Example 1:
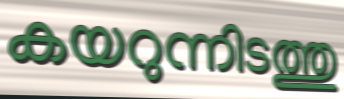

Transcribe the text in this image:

കയറുന്നിടത്തു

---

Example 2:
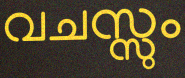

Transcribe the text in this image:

വചസ്സും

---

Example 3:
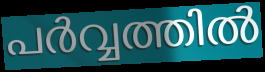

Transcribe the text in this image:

പർവ്വത്തിൽ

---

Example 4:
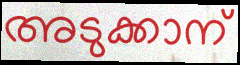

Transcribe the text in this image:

അടുക്കാന്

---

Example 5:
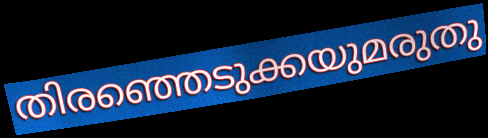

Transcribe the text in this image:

തിരഞ്ഞെടുക്കയുമരുതു